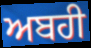
ਅਬਹੀ